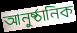
আনুষ্ঠানিক